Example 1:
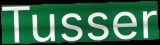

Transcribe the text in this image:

Tusser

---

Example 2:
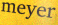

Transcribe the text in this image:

meyer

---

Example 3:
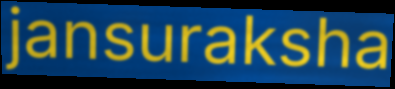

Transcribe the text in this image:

jansuraksha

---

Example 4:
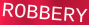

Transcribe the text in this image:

ROBBERY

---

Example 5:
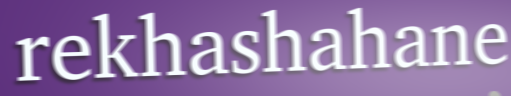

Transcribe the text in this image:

rekhashahane